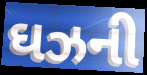
ઘઝની